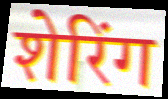
शेरिंग